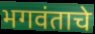
भगवंताचे